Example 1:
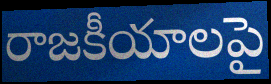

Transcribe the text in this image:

రాజకీయాలపై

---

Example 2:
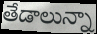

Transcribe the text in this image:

తేడాలున్నా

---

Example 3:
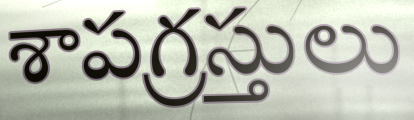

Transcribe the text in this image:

శాపగ్రస్తులు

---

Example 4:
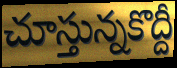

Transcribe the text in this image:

చూస్తున్నకొద్దీ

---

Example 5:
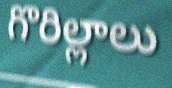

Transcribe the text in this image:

గొరిల్లాలు